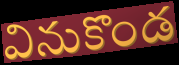
వినుకొండ